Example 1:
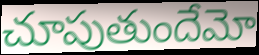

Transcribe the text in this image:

చూపుతుందేమో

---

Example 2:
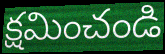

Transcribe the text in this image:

క్షమించండి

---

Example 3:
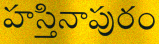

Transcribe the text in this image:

హస్తినాపురం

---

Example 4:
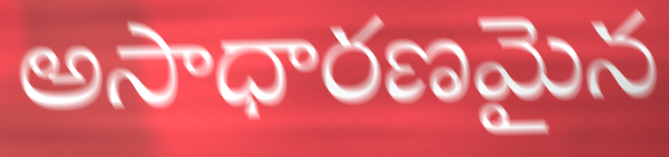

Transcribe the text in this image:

అసాధారణమైన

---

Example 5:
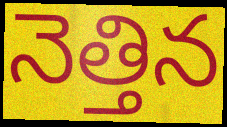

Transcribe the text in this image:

నెత్తిన